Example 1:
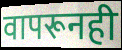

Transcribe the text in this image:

वापरूनही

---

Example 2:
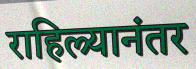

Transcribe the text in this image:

राहिल्यानंतर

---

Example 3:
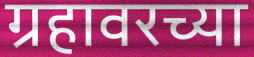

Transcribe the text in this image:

ग्रहावरच्या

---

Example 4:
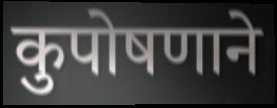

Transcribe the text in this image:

कुपोषणाने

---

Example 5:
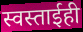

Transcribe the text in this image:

स्वस्ताईही